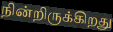
நின்றிருக்கிறது